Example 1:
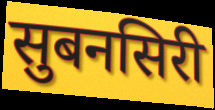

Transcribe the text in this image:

सुबनसिरी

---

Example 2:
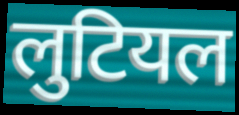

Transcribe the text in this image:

लुटियल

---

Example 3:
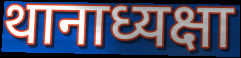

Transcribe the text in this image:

थानाध्यक्षा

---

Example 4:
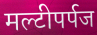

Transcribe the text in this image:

मल्टीपर्पज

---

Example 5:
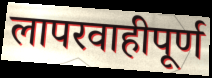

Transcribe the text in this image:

लापरवाहीपूर्ण